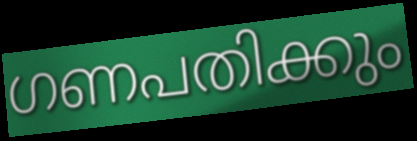
ഗണപതിക്കും